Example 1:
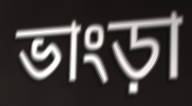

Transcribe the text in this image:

ভাংড়া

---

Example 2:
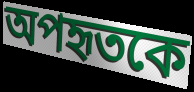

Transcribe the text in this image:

অপহৃতকে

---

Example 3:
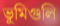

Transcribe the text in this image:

ভূমিগুলি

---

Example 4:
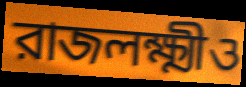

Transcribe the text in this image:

রাজলক্ষ্মীও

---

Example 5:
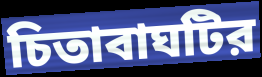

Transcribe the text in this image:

চিতাবাঘটির